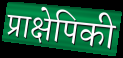
प्राक्षेपिकी